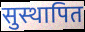
सुस्थापित